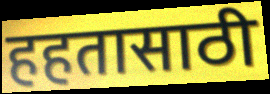
हहतासाठी